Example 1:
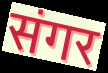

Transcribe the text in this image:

संगर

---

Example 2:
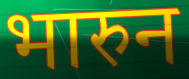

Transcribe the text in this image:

भारुन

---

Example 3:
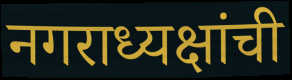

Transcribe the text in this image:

नगराध्यक्षांची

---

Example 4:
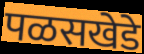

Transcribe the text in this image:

पळसखेडे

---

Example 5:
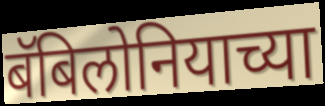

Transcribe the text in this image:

बॅबिलोनियाच्या